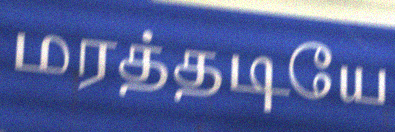
மரத்தடியே